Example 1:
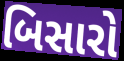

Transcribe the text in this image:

બિસારો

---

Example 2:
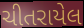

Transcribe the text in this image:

ચીતરાયેલ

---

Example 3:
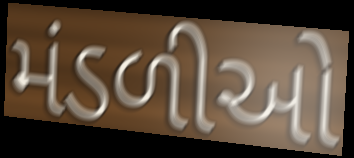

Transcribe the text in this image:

મંડળીઓ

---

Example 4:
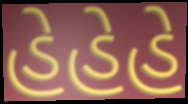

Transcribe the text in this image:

હેહેહે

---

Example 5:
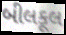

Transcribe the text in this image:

બીલકૂલ